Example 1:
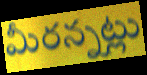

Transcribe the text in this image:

మీరన్నట్లు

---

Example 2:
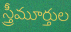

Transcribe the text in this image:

స్త్రీమూర్తుల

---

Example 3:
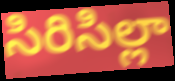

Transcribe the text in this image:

సిరిసిల్లా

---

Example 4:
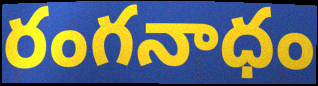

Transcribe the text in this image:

రంగనాధం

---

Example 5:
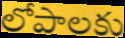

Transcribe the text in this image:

లోపాలకు